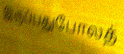
இருப்பதுபோலத்